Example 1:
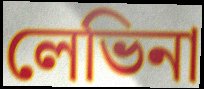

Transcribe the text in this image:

লেভিনা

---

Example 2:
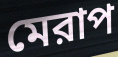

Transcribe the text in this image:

মেরাপ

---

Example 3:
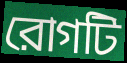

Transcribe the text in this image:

রোগটি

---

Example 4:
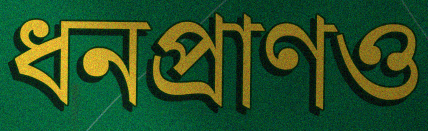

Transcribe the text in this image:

ধনপ্রাণও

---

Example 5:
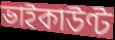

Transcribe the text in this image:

ভাইকাউণ্ট